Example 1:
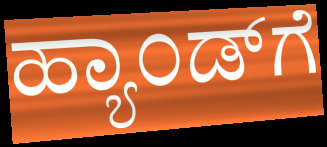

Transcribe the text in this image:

ಹ್ಯಾಂಡ್‌ಗೆ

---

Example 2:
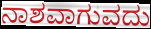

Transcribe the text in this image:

ನಾಶವಾಗುವದು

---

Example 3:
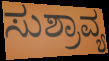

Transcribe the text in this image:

ಸುಶ್ರಾವ್ಯ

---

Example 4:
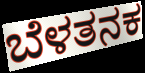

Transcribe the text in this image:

ಬೆಳತನಕ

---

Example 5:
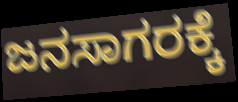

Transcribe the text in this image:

ಜನಸಾಗರಕ್ಕೆ